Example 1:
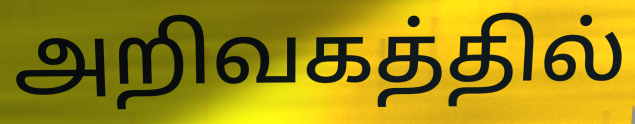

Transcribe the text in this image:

அறிவகத்தில்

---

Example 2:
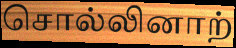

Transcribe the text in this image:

சொல்லினாற்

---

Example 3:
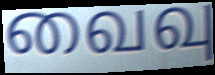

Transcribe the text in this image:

வைவு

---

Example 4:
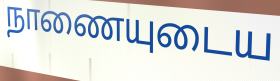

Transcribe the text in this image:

நாணையுடைய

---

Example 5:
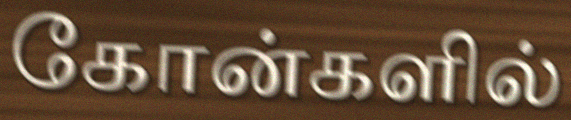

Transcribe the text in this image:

கோன்களில்